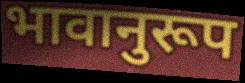
भावानुरूप